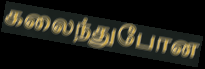
கலைந்துபோன